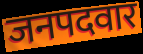
जनपदवार